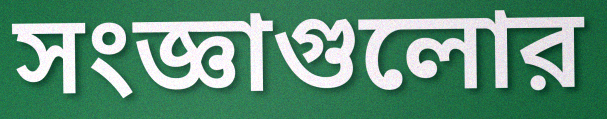
সংজ্ঞাগুলোর